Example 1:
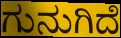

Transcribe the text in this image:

ಗುನುಗಿದೆ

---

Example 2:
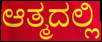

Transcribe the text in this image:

ಆತ್ಮದಲ್ಲಿ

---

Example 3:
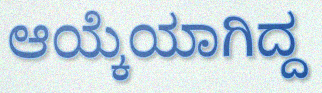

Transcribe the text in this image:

ಆಯ್ಕೆಯಾಗಿದ್ದ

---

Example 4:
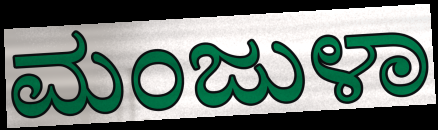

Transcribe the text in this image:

ಮಂಜುಳಾ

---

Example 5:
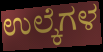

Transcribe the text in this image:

ಉಲ್ಕೆಗಳ